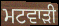
ਮਟਵਾੜੀ